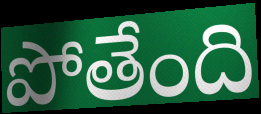
పోతేంది